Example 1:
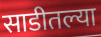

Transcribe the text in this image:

साडीतल्या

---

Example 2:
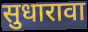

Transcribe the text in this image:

सुधारावा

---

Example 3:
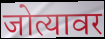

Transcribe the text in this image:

जोत्यावर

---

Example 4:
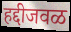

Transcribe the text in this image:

हद्दीजवळ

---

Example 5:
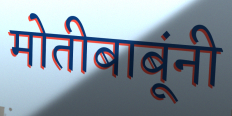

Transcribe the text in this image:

मोतीबाबूंनी